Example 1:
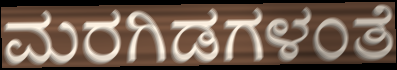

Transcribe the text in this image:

ಮರಗಿಡಗಳಂತೆ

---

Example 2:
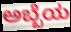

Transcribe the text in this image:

ಅಬ್ಬೆಯ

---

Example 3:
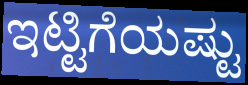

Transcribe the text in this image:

ಇಟ್ಟಿಗೆಯಷ್ಟು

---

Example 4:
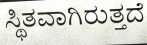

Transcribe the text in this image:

ಸ್ಥಿತವಾಗಿರುತ್ತದೆ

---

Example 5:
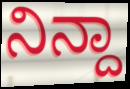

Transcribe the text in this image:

ನಿನ್ದಾ